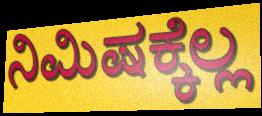
ನಿಮಿಷಕ್ಕೆಲ್ಲ